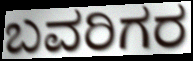
ಬವರಿಗರ